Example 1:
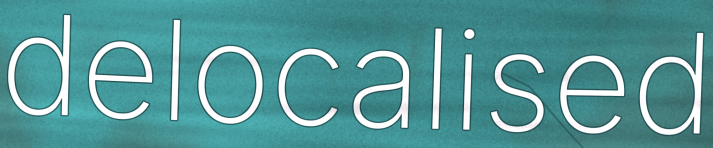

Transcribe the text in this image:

delocalised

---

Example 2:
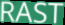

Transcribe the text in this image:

RAST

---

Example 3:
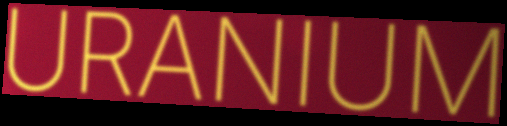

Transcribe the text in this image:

URANIUM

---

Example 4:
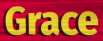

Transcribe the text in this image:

Grace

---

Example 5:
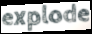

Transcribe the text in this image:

explode